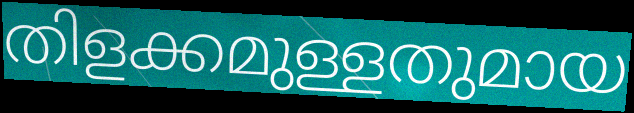
തിളക്കമുള്ളതുമായ